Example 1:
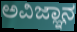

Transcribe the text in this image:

ಅವಿಜ್ಞಾನ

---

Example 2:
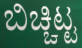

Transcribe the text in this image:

ಬಿಚ್ಚಿಟ್ಟ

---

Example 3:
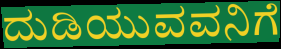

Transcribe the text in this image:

ದುಡಿಯುವವನಿಗೆ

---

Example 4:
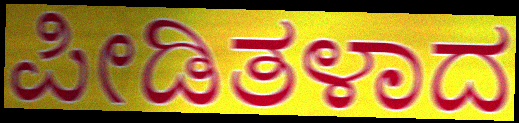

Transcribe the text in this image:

ಪೀಡಿತಳಾದ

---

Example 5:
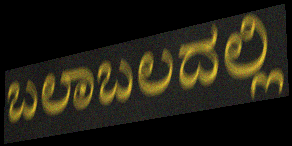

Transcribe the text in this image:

ಬಲಾಬಲದಲ್ಲಿ